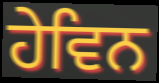
ਹੇਵਿਨ